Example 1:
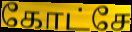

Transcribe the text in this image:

கோட்சே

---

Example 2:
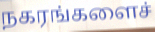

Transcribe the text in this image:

நகரங்களைச்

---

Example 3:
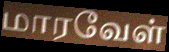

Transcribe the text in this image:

மாரவேள்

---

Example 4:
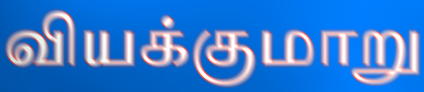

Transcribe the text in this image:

வியக்குமாறு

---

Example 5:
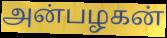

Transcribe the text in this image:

அன்பழகன்